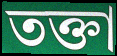
তক্তা